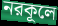
নরকূলে